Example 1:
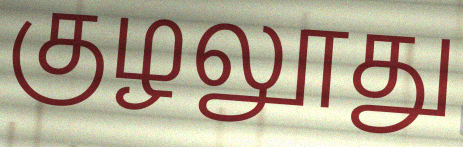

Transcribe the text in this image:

குழலூது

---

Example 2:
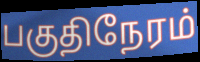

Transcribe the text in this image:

பகுதிநேரம்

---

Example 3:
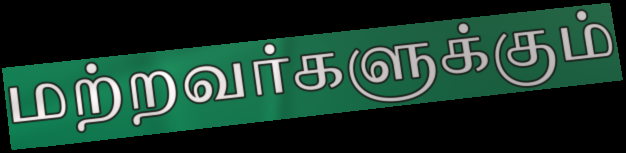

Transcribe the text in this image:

மற்றவர்களுக்கும்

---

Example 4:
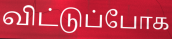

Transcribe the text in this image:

விட்டுப்போக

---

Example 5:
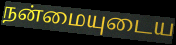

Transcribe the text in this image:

நன்மையுடைய